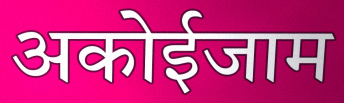
अकोईजाम